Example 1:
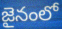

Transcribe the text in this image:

జైనంలో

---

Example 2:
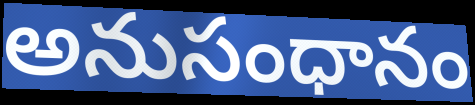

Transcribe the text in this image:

అనుసంధానం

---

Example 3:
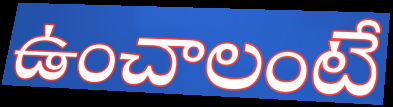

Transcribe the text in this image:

ఉంచాలంటే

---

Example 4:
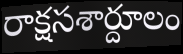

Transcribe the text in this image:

రాక్షసశార్దూలం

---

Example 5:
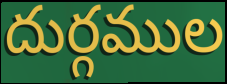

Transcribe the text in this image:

దుర్గముల